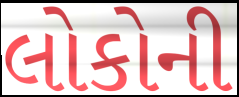
લોકોની